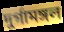
দুর্গামঙ্গল